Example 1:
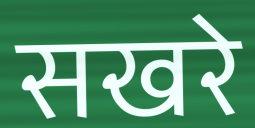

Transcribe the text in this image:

सखरे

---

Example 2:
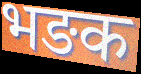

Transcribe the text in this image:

भङक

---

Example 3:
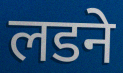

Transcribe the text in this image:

लडने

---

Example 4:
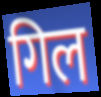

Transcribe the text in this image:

गिल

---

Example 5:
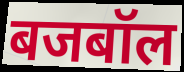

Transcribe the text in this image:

बजबॉल